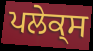
ਪਲੇਕ੍ਸ